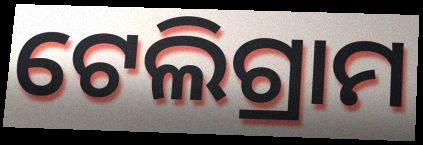
ଟେଲିଗ୍ରାମ